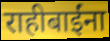
राहीबाईंना